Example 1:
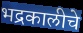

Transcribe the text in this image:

भद्रकालीचे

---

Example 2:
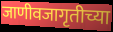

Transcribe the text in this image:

जाणीवजागृतीच्या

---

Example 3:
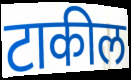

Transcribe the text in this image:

टाकील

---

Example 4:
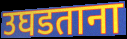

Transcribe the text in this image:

उघडताना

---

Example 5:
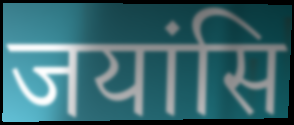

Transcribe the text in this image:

जयांसि